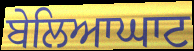
ਬੇਲਿਆਘਾਟ